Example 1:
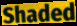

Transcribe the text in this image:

Shaded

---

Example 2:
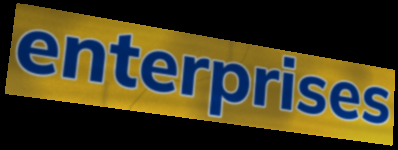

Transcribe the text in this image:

enterprises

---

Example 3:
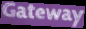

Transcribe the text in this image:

Gateway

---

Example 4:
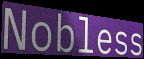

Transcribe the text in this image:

Nobless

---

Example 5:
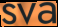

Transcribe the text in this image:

sva